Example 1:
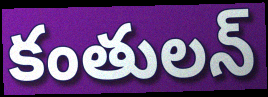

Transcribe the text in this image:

కంతులన్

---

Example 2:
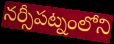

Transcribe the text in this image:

నర్సీపట్నంలోని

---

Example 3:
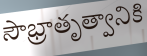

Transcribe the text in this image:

సౌభ్రాతృత్వానికి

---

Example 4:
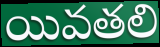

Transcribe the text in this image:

యివతలి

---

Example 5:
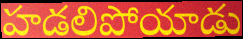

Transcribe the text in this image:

హడలిపోయాడు